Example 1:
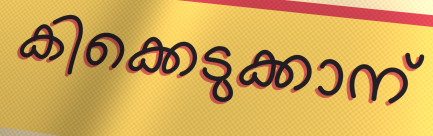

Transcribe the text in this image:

കിക്കെടുക്കാന്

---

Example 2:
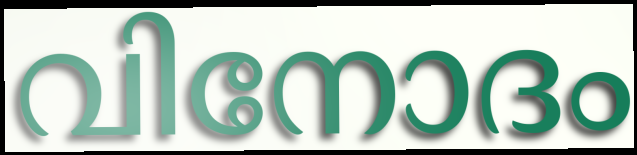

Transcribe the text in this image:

വിനോദം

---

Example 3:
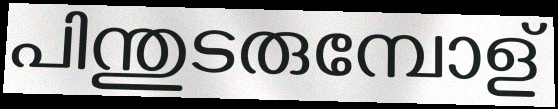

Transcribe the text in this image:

പിന്തുടരുമ്പോള്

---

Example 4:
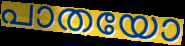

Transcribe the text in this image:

പാതയോ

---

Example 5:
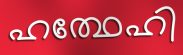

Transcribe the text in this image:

ഹത്ഥേഹി